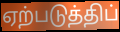
ஏற்படுத்திப்